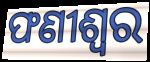
ଫଣୀଶ୍ୱର